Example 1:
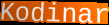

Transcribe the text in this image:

Kodinar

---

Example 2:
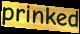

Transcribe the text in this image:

prinked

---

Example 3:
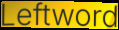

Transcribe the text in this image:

Leftword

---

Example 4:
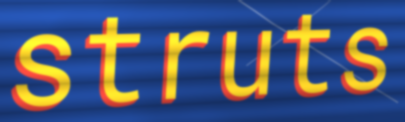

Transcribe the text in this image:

struts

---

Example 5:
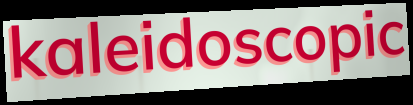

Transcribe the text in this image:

kaleidoscopic